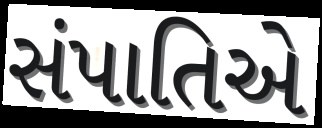
સંપાતિએ